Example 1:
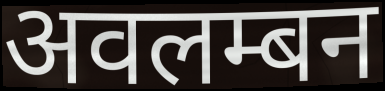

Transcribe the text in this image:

अवलम्बन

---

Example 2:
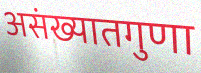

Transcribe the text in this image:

असंख्यातगुणा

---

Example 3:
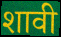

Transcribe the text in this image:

शावी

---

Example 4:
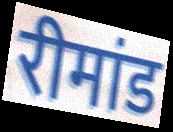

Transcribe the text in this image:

रीमांड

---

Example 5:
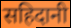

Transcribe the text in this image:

सहिदानी